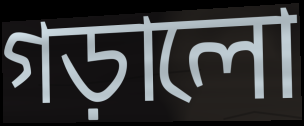
গড়ালো